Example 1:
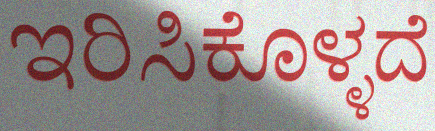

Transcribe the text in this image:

ಇರಿಸಿಕೊಳ್ಳದೆ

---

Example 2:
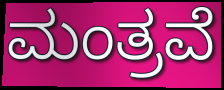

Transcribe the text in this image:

ಮಂತ್ರವೆ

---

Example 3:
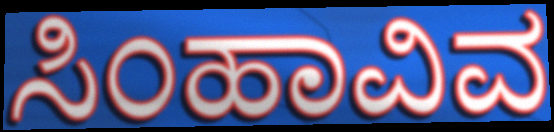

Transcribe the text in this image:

ಸಿಂಹಾವಿವ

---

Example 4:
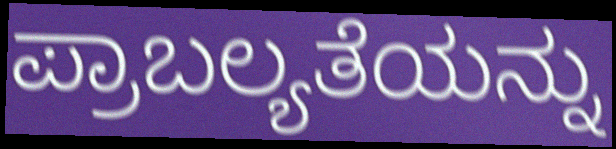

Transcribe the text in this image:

ಪ್ರಾಬಲ್ಯತೆಯನ್ನು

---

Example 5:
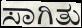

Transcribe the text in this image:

ಸಾಗಿತು